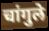
चांगुले